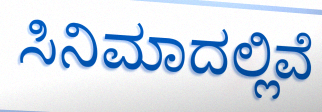
ಸಿನಿಮಾದಲ್ಲಿವೆ